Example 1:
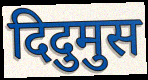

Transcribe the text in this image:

दिदुमुस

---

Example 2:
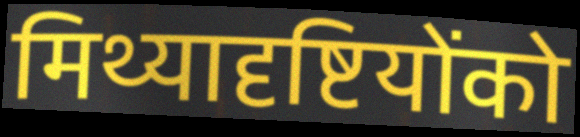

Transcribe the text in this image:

मिथ्यादृष्टियोंको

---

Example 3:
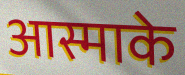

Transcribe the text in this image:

आस्माके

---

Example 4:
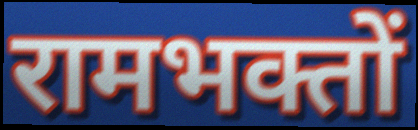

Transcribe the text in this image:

रामभक्तों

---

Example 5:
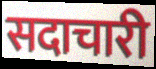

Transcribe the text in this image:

सदाचारी